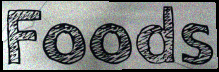
Foods